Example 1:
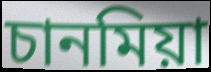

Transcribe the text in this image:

চানমিয়া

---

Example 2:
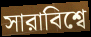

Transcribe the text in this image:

সারাবিশ্বে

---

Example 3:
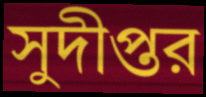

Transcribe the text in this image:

সুদীপ্তর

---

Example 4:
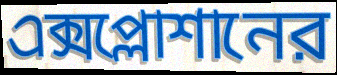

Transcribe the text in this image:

এক্সপ্লোশানের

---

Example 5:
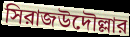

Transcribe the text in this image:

সিরাজউদৌল্লার